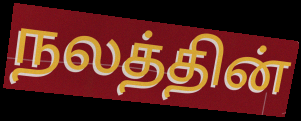
நலத்தின்